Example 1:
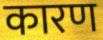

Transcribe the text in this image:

कारण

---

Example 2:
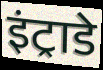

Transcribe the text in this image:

इंट्राडे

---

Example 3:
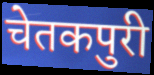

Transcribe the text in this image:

चेतकपुरी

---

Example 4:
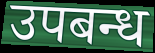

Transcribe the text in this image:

उपबन्ध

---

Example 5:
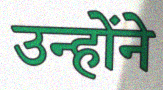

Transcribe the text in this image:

उन्होंने